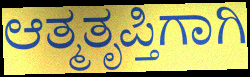
ಆತ್ಮತೃಪ್ತಿಗಾಗಿ